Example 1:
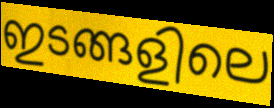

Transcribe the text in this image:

ഇടങ്ങളിലെ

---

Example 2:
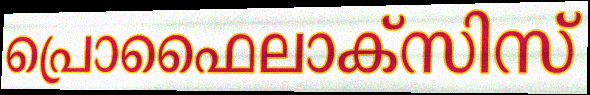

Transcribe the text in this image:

പ്രൊഫൈലാക്സിസ്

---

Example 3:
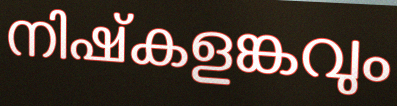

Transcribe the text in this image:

നിഷ്‌കളങ്കവും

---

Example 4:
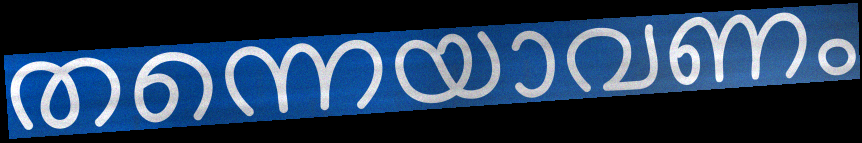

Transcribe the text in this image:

തന്നെയാവണം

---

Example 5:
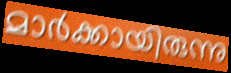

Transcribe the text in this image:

മാർക്കായിരുന്നു